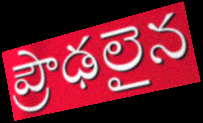
ప్రౌఢలైన